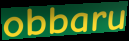
obbaru